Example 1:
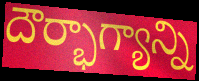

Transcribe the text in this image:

దౌర్భాగ్యాన్ని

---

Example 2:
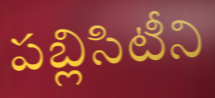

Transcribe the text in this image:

పబ్లిసిటీని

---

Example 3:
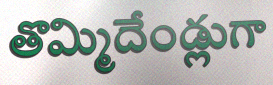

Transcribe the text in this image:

తొమ్మిదేండ్లుగా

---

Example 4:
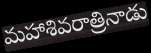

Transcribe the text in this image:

మహాశివరాత్రినాడు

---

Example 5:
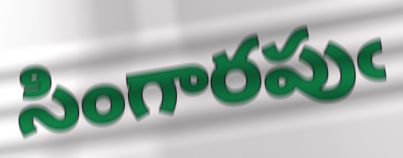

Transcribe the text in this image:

సింగారపుఁ